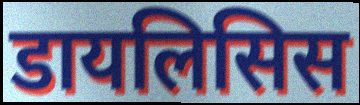
डायलिसिस